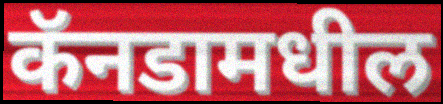
कॅनडामधील